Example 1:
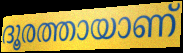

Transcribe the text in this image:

ദൂരത്തായാണ്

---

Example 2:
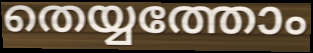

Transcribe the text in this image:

തെയ്യത്തോം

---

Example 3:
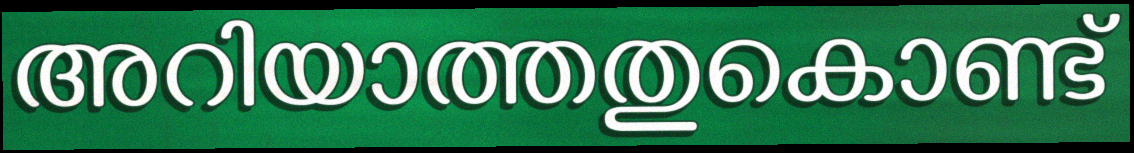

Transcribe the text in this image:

അറിയാത്തതുകൊണ്ട്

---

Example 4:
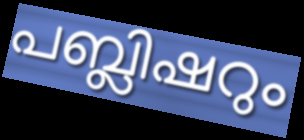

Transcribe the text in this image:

പബ്ലിഷറും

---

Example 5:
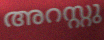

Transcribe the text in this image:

അറസ്റ്റു